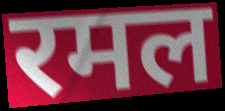
रमल